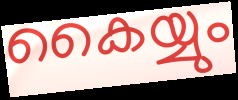
കൈയ്യും